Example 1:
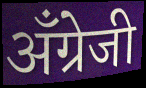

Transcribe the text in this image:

अँग्रेजी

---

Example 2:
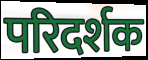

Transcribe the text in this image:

परिदर्शक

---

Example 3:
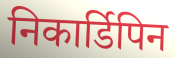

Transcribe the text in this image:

निकार्डिपिन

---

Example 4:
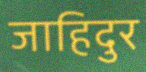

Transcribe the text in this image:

जाहिदुर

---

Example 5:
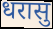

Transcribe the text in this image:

धरासु